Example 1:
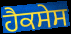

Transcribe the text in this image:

ਹੈਕਸੇਸ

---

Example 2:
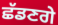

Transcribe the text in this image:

ਛੱਡਣਗੇ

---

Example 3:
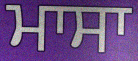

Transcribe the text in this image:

ਮਾਸਾ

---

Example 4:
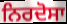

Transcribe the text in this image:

ਨਿਰਦੋਸਾ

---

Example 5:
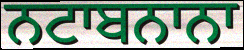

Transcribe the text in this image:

ਨਟਾਬਨਾਨਾ